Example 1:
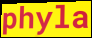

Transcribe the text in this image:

phyla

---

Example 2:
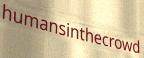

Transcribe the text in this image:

humansinthecrowd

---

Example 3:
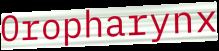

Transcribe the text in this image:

Oropharynx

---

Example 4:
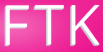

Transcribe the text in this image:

FTK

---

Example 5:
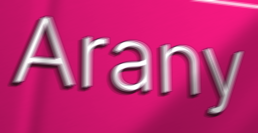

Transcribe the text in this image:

Arany